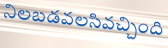
నిలబడవలసివచ్చింది